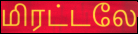
மிரட்டலே